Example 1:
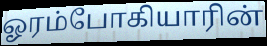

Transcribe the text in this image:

ஓரம்போகியாரின்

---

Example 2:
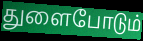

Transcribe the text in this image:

துளைபோடும்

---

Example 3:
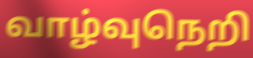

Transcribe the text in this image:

வாழ்வுநெறி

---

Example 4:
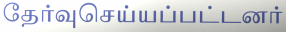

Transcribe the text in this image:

தேர்வுசெய்யப்பட்டனர்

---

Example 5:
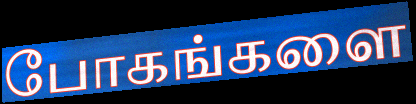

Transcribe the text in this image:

போகங்களை